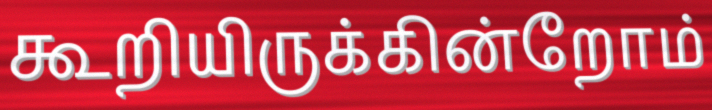
கூறியிருக்கின்றோம்